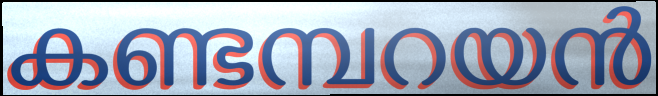
കണ്ടമ്പറയൻ